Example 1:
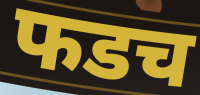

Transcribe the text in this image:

फडच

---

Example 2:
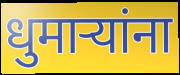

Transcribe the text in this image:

धुमाऱ्यांना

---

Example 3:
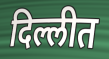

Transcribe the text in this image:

दिल्लीत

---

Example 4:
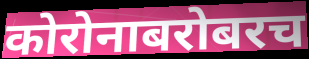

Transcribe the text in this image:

कोरोनाबरोबरच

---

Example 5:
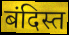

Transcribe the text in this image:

बंदिस्त